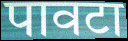
पावटा